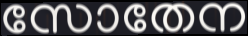
സോതേന